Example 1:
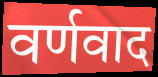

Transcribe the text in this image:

वर्णवाद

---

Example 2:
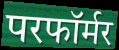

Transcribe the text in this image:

परफॉर्मर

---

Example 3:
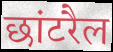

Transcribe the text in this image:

छांटरैल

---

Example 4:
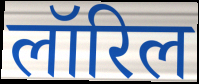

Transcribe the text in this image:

लॉरिल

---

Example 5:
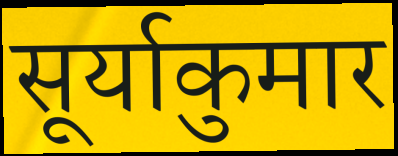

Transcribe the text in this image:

सूर्याकुमार